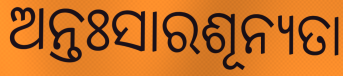
ଅନ୍ତଃସାରଶୂନ୍ୟତା